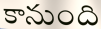
కానుంది